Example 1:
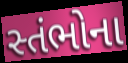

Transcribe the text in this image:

સ્તંભોના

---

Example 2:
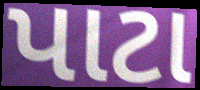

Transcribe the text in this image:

પાટા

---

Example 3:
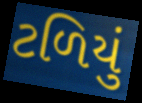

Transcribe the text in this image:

ટળિયું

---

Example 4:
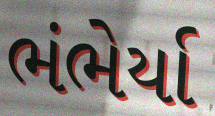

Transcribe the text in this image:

ભંભેર્યા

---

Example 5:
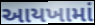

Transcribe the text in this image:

આયખામાં